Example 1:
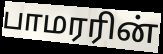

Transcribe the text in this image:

பாமரரின்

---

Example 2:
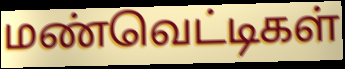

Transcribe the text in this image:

மண்வெட்டிகள்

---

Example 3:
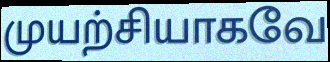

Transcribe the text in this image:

முயற்சியாகவே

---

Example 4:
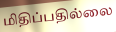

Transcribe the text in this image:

மிதிப்பதில்லை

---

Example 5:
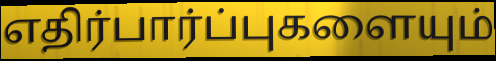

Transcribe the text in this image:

எதிர்பார்ப்புகளையும்